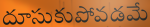
దూసుకుపోవడమే